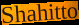
Shahitto